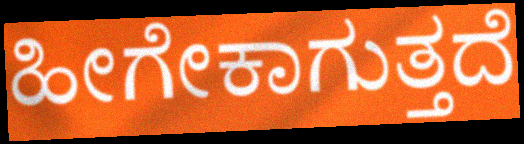
ಹೀಗೇಕಾಗುತ್ತದೆ